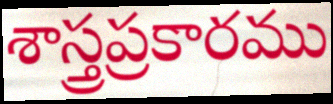
శాస్త్రప్రకారము